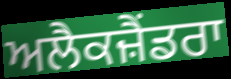
ਅਲੈਕਜ਼ੈਂਡਰਾ